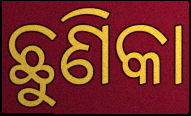
ଛୁଣିକା